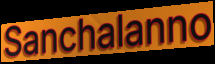
Sanchalanno